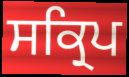
ਸਕ੍ਰਿਪ